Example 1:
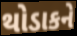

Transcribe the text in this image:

થોડાકને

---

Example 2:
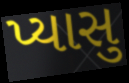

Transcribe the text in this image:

પ્યાસુ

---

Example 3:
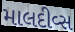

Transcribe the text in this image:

માલદીવ્સ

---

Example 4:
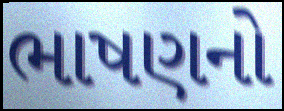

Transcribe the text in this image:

ભાષણનો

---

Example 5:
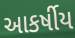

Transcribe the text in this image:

આકર્ષીય